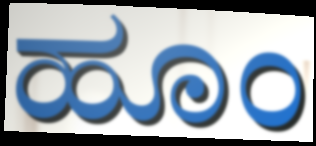
ಹೂಂ